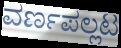
ವರ್ಣಪಲ್ಲಟ